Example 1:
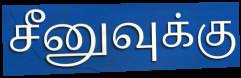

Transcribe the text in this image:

சீனுவுக்கு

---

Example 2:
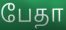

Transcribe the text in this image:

பேதா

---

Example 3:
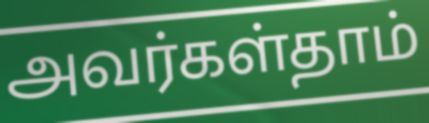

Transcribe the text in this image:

அவர்கள்தாம்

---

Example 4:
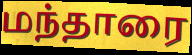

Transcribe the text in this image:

மந்தாரை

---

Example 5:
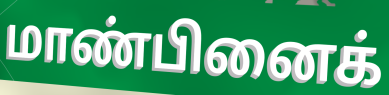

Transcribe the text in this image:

மாண்பினைக்